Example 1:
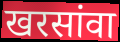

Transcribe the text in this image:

खरसांवा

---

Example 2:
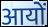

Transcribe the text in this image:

आयों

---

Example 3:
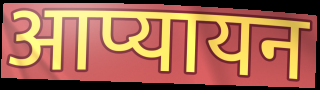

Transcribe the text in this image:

आप्यायन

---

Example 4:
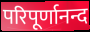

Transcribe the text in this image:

परिपूर्णानन्द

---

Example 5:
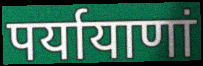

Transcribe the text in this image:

पर्यायाणां